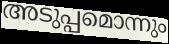
അടുപ്പമൊന്നും